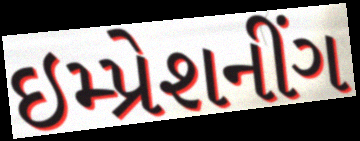
ઇમ્પ્રેશનીંગ